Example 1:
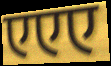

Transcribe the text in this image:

एएए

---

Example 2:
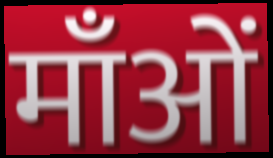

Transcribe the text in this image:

माँओं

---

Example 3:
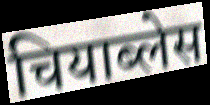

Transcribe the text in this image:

चियाब्लेस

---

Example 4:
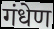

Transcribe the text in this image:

गंधेण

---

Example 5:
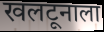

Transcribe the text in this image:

खलटूनाला